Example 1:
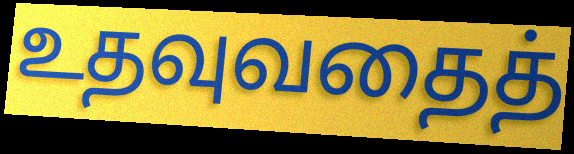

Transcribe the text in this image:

உதவுவதைத்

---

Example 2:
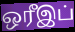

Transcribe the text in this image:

ஒரீஇப்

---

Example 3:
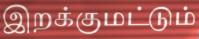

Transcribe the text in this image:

இறக்குமட்டும்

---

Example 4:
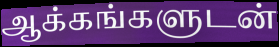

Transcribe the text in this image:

ஆக்கங்களுடன்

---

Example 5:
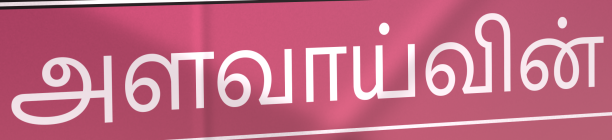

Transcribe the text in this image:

அளவாய்வின்